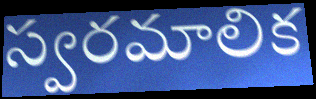
స్వరమాలిక